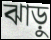
ঝাড়ু